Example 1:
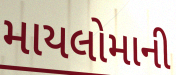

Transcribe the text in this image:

માયલોમાની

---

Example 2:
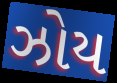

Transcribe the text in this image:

ઝોય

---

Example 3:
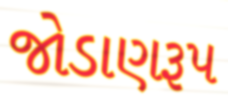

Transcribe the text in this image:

જોડાણરૂપ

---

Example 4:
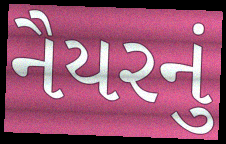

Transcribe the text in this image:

નૈયરનું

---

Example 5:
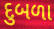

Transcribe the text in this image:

દુબળા